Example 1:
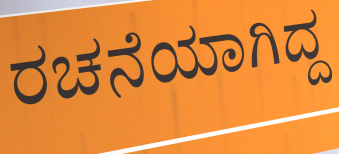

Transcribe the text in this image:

ರಚನೆಯಾಗಿದ್ದ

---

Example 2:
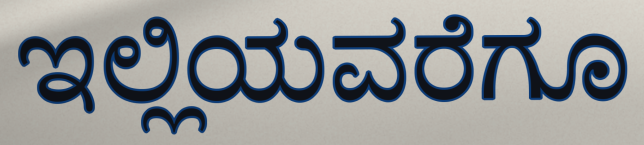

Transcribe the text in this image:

ಇಲ್ಲಿಯವರೆಗೂ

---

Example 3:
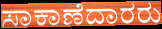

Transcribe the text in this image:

ಸಾಕಾಣೆದಾರರು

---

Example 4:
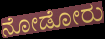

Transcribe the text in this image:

ನೋಡೋರು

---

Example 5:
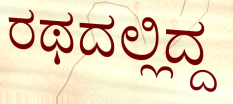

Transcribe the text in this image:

ರಥದಲ್ಲಿದ್ದ